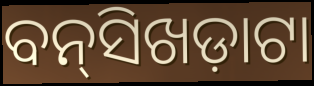
ବନ୍‌ସିଖଡ଼ାଟା